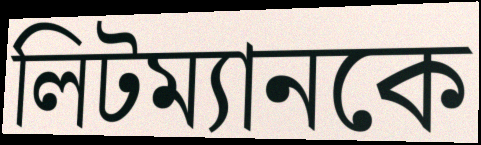
লিটম্যানকে